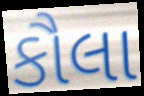
કૌલા